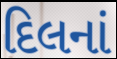
દિલનાં